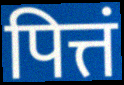
पित्तं